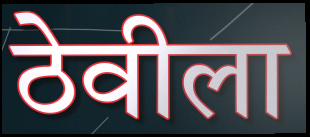
ठेवीला